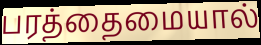
பரத்தைமையால்